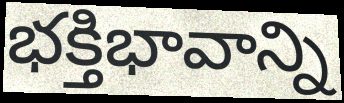
భక్తిభావాన్ని